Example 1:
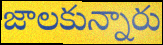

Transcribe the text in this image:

జాలకున్నారు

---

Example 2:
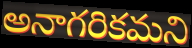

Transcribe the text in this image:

అనాగరికమని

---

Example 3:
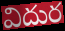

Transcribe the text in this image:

విదుర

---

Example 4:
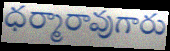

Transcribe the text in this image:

ధర్మారావుగారు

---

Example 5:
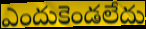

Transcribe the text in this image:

ఎందుకెండలేదు